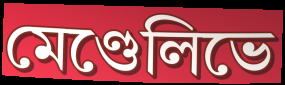
মেণ্ডেলিভে